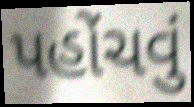
પહોંચવું